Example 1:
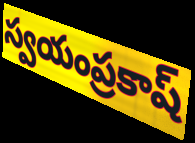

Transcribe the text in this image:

స్వయంప్రకాష్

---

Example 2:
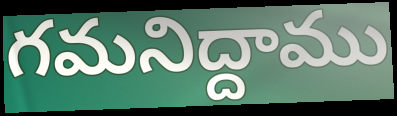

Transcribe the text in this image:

గమనిద్దాము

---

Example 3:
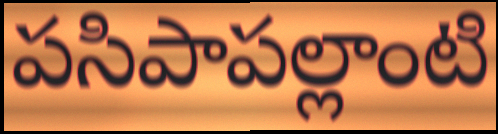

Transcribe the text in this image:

పసిపాపల్లాంటి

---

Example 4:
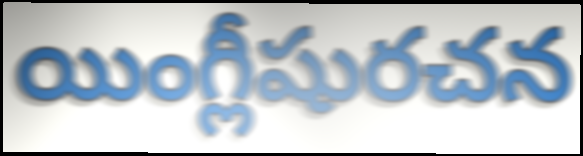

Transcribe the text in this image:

యింగ్లీషురచన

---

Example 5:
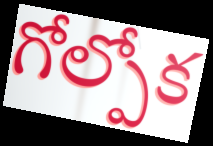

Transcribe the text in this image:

గోల్పోక